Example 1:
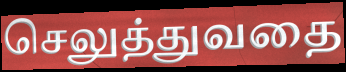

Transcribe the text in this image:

செலுத்துவதை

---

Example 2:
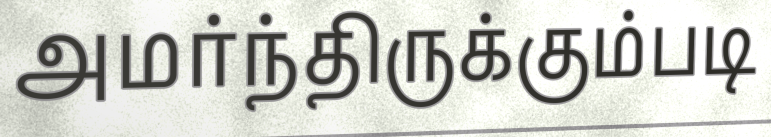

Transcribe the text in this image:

அமர்ந்திருக்கும்படி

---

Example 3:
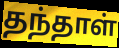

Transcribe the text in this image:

தந்தாள்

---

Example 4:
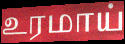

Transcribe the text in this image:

உரமாய்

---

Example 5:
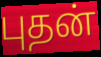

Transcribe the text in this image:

புதன்